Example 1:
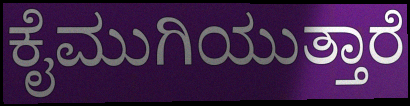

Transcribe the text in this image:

ಕೈಮುಗಿಯುತ್ತಾರೆ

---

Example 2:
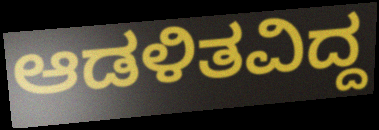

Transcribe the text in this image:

ಆಡಳಿತವಿದ್ದ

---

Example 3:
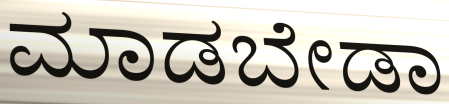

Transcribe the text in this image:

ಮಾಡಬೇಡಾ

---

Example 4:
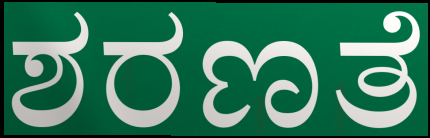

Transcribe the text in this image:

ಶರಣತೆ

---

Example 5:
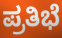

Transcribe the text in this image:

ಪ್ರತಿಭೆ